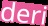
deri